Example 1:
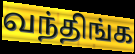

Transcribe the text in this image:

வந்திங்க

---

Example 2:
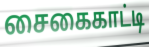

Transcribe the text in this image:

சைகைகாட்டி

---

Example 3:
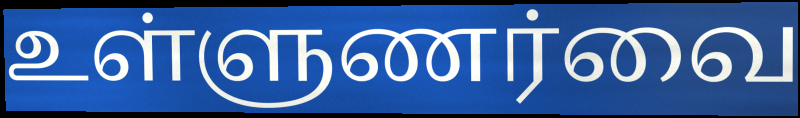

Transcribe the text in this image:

உள்ளுணர்வை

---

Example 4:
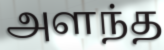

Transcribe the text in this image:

அளந்த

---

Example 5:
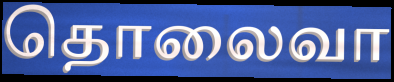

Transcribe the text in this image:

தொலைவா